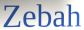
Zebah